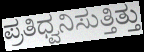
ಪ್ರತಿಧ್ವನಿಸುತ್ತಿತ್ತು